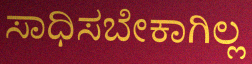
ಸಾಧಿಸಬೇಕಾಗಿಲ್ಲ